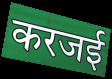
करजई